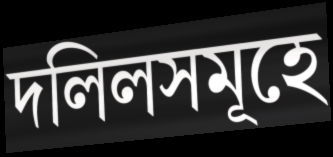
দলিলসমূহে